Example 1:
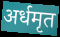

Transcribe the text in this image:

अर्धमृत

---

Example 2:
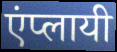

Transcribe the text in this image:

एंप्लायी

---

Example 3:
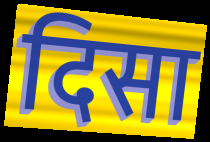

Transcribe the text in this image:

दिसा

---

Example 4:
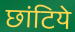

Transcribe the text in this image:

छांटिये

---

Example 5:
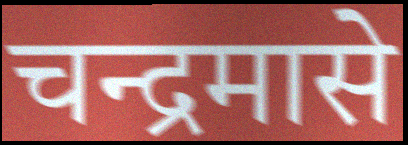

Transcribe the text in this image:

चन्द्रमासे